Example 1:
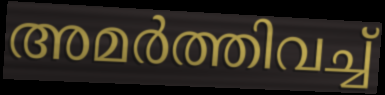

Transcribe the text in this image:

അമർത്തിവച്ച്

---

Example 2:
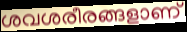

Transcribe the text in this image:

ശവശരീരങ്ങളാണ്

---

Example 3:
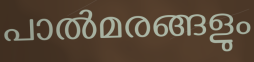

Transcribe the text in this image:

പാൽമരങ്ങളും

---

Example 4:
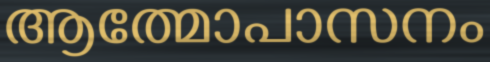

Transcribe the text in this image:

ആത്മോപാസനം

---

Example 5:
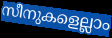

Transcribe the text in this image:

സീനുകളെല്ലാം